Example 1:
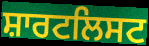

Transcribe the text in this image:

ਸ਼ਾਰਟਲਿਸਟ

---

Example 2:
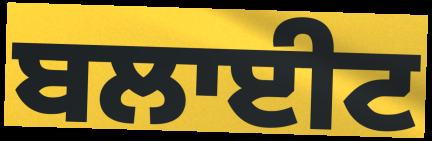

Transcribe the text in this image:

ਬਲਾਈਟ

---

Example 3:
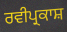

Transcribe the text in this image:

ਰਵੀਪ੍ਰਕਾਸ਼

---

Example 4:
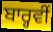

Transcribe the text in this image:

ਬਾਰ੍ਹਵੀਂ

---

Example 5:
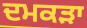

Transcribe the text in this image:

ਦਮਕੜਾ